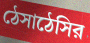
ঠেসাঠেসির